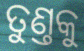
ତୁଣ୍ତକୁ